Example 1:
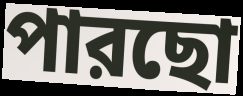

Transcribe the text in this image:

পারছো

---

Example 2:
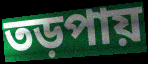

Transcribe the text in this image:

তড়পায়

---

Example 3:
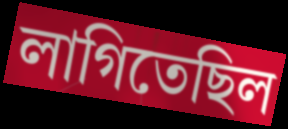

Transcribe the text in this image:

লাগিতেছিল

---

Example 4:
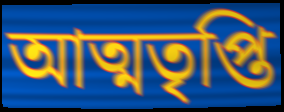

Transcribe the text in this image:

আত্মতৃপ্তি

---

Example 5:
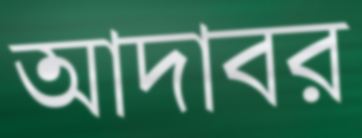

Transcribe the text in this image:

আদাবর